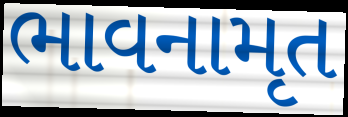
ભાવનામૃત